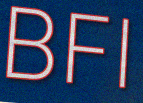
BFI